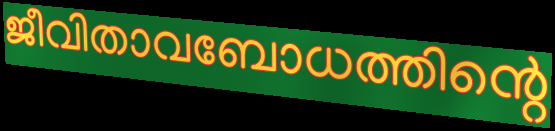
ജീവിതാവബോധത്തിന്റെ